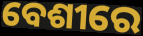
ବେଶୀରେ